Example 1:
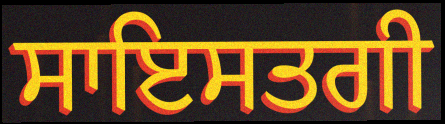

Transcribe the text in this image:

ਸਾਇਸਤਗੀ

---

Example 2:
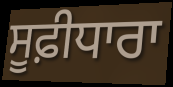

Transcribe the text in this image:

ਸੂਫ਼ੀਧਾਰਾ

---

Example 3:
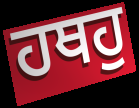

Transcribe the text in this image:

ਹਥਹੁ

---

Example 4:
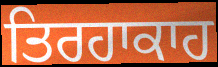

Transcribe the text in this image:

ਤਿਰਹਾਕਾਹ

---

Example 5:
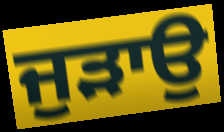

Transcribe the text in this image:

ਜੁੜਾਉ